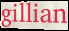
gillian